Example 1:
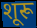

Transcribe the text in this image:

शूरू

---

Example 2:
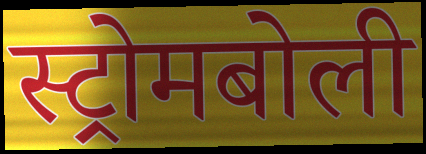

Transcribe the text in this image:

स्ट्रोमबोली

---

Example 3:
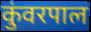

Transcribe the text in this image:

कुंवरपाल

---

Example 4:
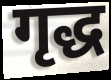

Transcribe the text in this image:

गृद्ध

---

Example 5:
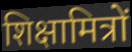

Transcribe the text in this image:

शिक्षामित्रों